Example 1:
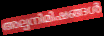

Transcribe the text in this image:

അല്പനിമിഷങ്ങൾ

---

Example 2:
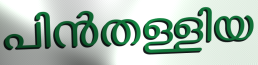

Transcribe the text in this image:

പിൻതള്ളിയ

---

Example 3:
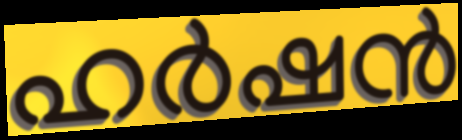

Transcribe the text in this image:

ഹർഷൻ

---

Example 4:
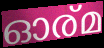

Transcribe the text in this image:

ഓര്മ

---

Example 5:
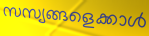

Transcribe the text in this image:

സസ്യങ്ങളെക്കാൾ